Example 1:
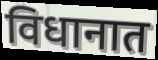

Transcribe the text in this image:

विधानात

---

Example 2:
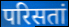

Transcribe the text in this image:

परिसतां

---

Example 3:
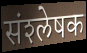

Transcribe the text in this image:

संश्लेषक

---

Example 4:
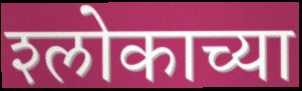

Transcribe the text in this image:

श्लोकाच्या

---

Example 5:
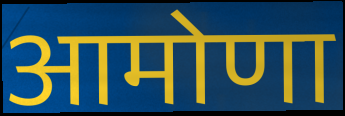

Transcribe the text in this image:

आमोणा